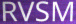
RVSM